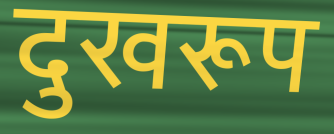
दुखरूप